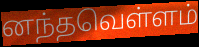
னந்தவெள்ளம்